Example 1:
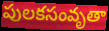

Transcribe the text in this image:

పులకసంవృతా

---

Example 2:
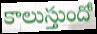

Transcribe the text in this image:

కాలుస్తుందో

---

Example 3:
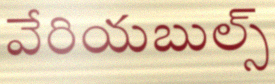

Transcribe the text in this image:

వేరియబుల్స్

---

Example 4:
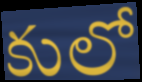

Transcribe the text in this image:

కులో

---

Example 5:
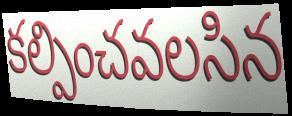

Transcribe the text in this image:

కల్పించవలసిన